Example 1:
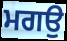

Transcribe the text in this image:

ਮਗਉ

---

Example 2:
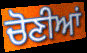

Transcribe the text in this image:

ਚੋਣੀਆਂ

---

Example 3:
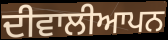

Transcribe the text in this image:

ਦੀਵਾਲੀਆਪਨ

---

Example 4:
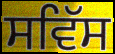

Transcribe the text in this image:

ਸਵਿੱਸ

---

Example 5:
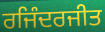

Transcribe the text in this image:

ਰਜਿੰਦਰਜੀਤ